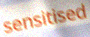
sensitised